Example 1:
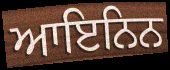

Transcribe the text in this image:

ਆਇਨਿਨ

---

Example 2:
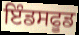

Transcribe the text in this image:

ਇੰਡਸਫੂਡ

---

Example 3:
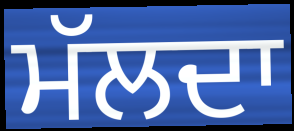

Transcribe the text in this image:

ਮੱਲਦਾ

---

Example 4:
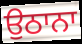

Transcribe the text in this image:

ਉਠਾਨਾ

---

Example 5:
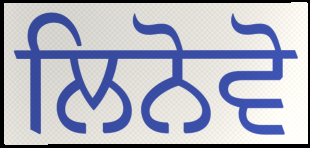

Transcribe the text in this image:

ਲਿਨੋਵੋ